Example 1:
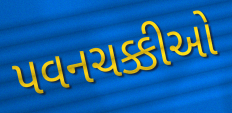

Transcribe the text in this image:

પવનચક્કીઓ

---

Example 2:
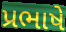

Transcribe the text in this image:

પ્રભાષે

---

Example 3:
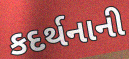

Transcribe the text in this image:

કદર્થનાની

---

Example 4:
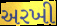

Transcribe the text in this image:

અરખી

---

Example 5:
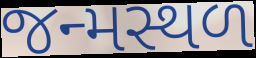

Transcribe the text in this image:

જન્મસ્થળ